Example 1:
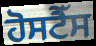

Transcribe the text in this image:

ਹੋਸਟੈੱਸ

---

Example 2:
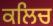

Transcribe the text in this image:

ਕਲਿਚ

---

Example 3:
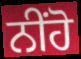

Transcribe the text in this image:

ਨੀਂਹੋ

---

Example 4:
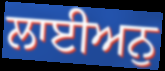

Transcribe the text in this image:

ਲਾਈਅਨੁ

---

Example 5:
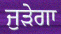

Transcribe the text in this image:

ਜੁੜੇਗਾ